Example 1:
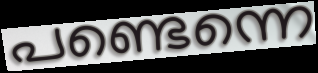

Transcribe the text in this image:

പണ്ടെന്നെ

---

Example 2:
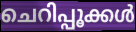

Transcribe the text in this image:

ചെറിപ്പൂക്കൾ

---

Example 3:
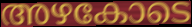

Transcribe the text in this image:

അഴകോടെ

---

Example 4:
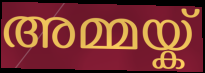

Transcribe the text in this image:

അമ്മയ്ക്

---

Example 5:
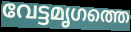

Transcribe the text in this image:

വേട്ടമൃഗത്തെ